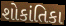
શોકાંતિકા